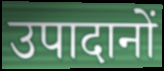
उपादानों